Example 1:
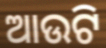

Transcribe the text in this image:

ଆଉଟି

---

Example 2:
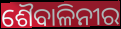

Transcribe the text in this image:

ଶୈବାଳିନୀର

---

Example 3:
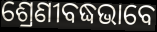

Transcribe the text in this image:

ଶ୍ରେଣୀବଦ୍ଧଭାବେ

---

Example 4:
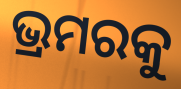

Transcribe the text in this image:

ଭ୍ରମରକୁ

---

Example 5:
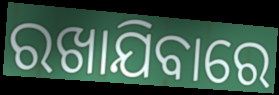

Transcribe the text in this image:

ରଖାଯିବାରେ